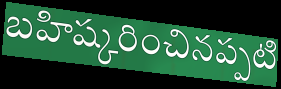
బహిష్కరించినప్పటి